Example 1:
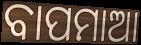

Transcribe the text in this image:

ବାପମାଆ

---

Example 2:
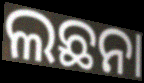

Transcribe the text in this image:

ଲଛନା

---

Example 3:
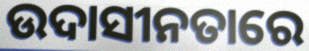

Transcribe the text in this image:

ଉଦାସୀନତାରେ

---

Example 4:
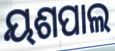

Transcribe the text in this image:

ୟଶପାଲ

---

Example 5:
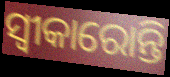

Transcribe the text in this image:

ସ୍ଵୀକାରୋନ୍ତି